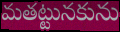
మతట్టునకును